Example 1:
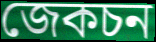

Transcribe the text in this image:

জেকচন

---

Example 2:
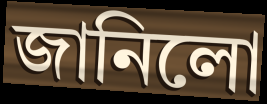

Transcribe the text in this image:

জানিলো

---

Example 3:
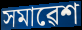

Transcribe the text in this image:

সমাৱেশ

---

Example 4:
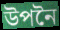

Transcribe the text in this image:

উপনৈ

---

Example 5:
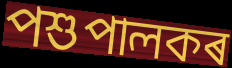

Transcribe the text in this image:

পশুপালকৰ